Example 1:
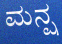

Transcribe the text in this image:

ಮನ್ಷ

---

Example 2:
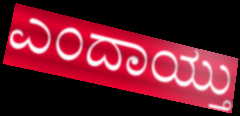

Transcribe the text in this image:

ಎಂದಾಯ್ತು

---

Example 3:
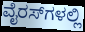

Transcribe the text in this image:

ವೈರಸ್‌ಗಳಲ್ಲಿ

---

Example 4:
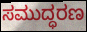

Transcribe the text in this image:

ಸಮುದ್ಧರಣ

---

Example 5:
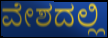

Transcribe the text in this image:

ವೇಶದಲ್ಲಿ